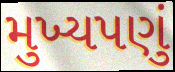
મુખ્યપણું